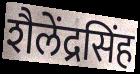
शैलेंद्रसिंह